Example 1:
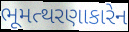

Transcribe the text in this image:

ભૂમત્થરણાકારેન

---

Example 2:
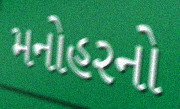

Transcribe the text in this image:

મનોહરનો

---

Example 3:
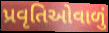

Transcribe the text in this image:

પ્રવૃતિઓવાળું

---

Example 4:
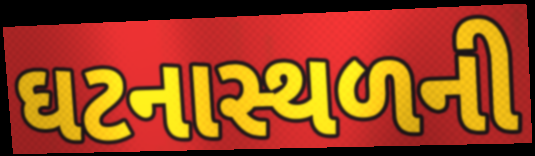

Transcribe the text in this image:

ઘટનાસ્થળની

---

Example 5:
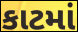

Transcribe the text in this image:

કાટમાં